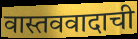
वास्तववादाची